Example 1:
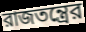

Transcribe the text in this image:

রাজতন্ত্রের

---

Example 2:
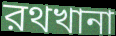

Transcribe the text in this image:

রথখানা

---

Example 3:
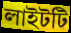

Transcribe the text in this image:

লাইটটি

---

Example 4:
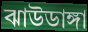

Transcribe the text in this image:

ঝাউডাঙ্গা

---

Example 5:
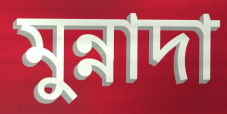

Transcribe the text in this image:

মুন্নাদা